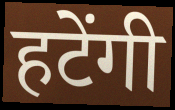
हटेंगी